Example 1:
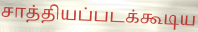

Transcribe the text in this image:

சாத்தியப்படக்கூடிய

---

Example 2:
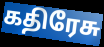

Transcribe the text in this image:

கதிரேசு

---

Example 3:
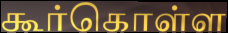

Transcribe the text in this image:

கூர்கொள்ள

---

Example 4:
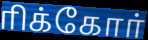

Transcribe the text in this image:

ரிக்கோர்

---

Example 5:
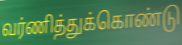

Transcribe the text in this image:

வர்ணித்துக்கொண்டு